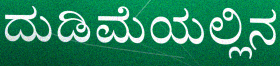
ದುಡಿಮೆಯಲ್ಲಿನ